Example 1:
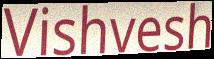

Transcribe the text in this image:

Vishvesh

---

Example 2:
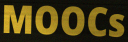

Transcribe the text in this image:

MOOCs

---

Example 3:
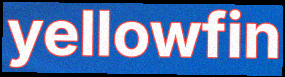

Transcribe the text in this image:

yellowfin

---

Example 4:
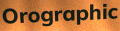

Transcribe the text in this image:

Orographic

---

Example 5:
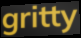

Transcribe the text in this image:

gritty